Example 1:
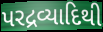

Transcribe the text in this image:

પરદ્રવ્યાદિથી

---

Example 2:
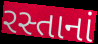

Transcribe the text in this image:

રસ્તાનાં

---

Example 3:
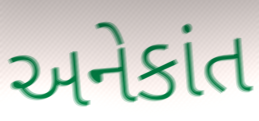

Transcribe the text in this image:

અનેકાંત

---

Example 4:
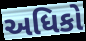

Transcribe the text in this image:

અધિકો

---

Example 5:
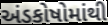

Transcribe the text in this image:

અંડકોષોમાંથી